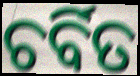
ଚର୍ବିତ